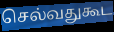
செல்வதுகூட